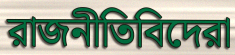
রাজনীতিবিদেরা